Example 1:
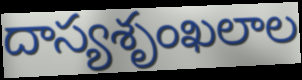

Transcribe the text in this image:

దాస్యశృంఖలాల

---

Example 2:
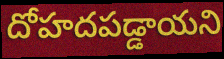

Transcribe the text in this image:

దోహదపడ్డాయని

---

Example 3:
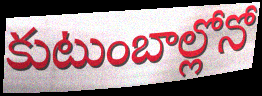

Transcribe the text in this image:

కుటుంబాల్లోనో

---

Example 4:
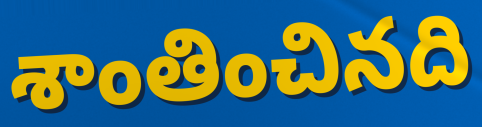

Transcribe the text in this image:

శాంతించినది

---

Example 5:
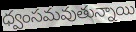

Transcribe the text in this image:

ధ్వంసమవుతున్నాయి